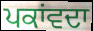
ਪਕਾਂਵਦਾ